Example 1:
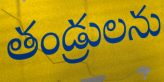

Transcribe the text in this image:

తండ్రులను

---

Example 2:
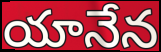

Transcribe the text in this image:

యానేన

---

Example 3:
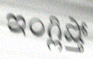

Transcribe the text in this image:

ఇంగ్లిష్తో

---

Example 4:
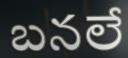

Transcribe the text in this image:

బనలే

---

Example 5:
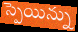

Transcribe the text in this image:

స్పెయిన్ను